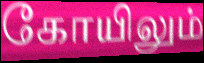
கோயிலும்